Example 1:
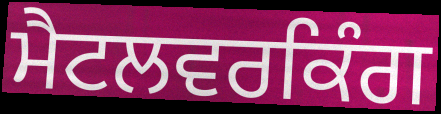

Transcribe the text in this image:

ਮੈਟਲਵਰਕਿੰਗ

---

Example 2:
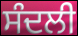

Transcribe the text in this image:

ਸੰਦਲੀ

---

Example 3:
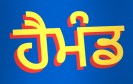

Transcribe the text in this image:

ਹੈਮੰਡ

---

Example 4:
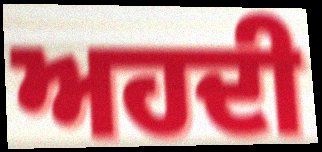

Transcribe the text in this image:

ਅਹਦੀ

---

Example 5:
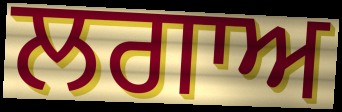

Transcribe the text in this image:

ਲਗਾਅ